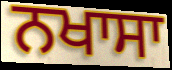
ਨਖਾਸਾ